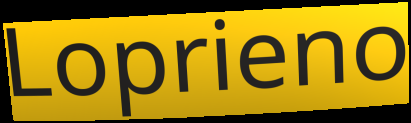
Loprieno